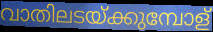
വാതിലടയ്ക്കുമ്പോള്